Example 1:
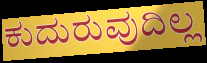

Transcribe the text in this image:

ಕುದುರುವುದಿಲ್ಲ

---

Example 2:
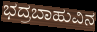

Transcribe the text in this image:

ಭದ್ರಬಾಹುವಿನ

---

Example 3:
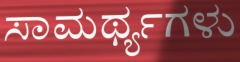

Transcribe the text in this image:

ಸಾಮರ್ಥ್ಯಗಳು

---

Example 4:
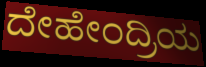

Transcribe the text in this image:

ದೇಹೇಂದ್ರಿಯ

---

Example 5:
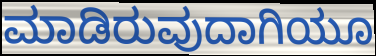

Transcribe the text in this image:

ಮಾಡಿರುವುದಾಗಿಯೂ